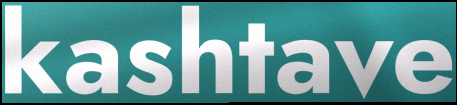
kashtave